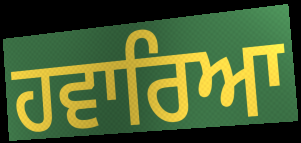
ਹਵਾਰਿਆ